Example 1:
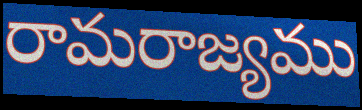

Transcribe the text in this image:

రామరాజ్యము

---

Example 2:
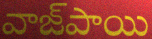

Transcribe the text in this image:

వాజ్‌పాయి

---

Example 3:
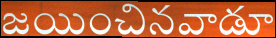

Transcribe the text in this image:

జయించినవాడూ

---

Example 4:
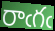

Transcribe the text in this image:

రాఁగఁ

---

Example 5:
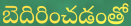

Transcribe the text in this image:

బెదిరించడంతో